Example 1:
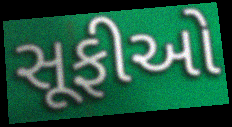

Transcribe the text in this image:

સૂફીઓ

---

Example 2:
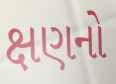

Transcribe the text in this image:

ક્ષણનો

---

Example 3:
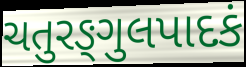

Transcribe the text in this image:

ચતુરઙ્ગુલપાદકં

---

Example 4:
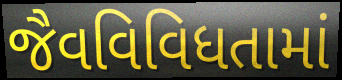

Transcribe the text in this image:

જૈવવિવિધતામાં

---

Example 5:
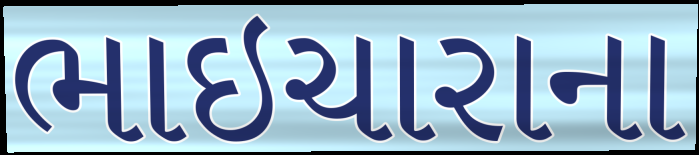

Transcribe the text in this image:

ભાઇચારાના